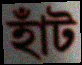
হাঁট